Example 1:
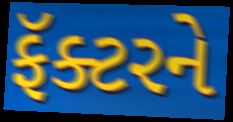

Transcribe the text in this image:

ફૅક્ટરને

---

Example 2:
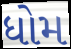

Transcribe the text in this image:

ધોમ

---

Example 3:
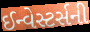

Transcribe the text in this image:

ઈન્વેસ્ટર્સની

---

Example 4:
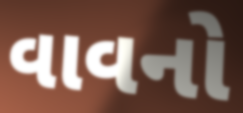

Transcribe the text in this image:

વાવનો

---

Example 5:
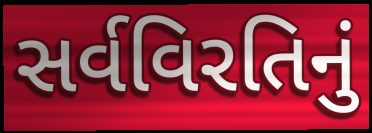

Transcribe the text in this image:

સર્વવિરતિનું